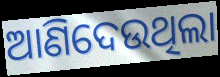
ଆଣିଦେଉଥିଲା